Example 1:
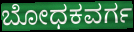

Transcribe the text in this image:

ಬೋಧಕವರ್ಗ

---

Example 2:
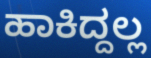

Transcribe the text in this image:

ಹಾಕಿದ್ದಲ್ಲ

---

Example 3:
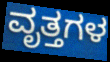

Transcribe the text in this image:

ವೃತ್ತಗಳ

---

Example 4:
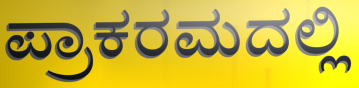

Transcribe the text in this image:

ಪ್ರಾಕರಮದಲ್ಲಿ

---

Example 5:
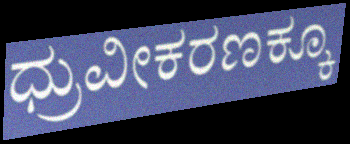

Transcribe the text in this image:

ಧ್ರುವೀಕರಣಕ್ಕೂ